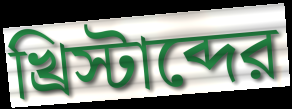
খ্রিস্টাব্দের